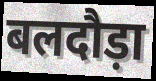
बलदौड़ा